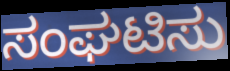
ಸಂಘಟಿಸು